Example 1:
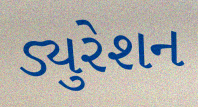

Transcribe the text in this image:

ડ્યુરેશન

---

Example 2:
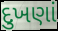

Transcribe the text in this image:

દુખણાં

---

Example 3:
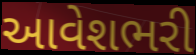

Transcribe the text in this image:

આવેશભરી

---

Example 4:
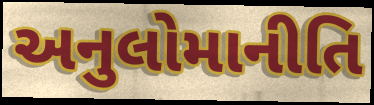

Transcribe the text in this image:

અનુલોમાનીતિ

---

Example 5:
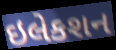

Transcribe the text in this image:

ઇલેકશન